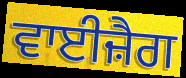
ਵਾਈਜ਼ੈਗ